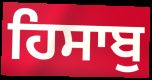
ਹਿਸਾਬੁ